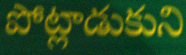
పోట్లాడుకుని